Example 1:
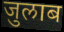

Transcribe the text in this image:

जुलाब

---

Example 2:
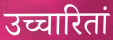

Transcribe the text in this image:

उच्चारितां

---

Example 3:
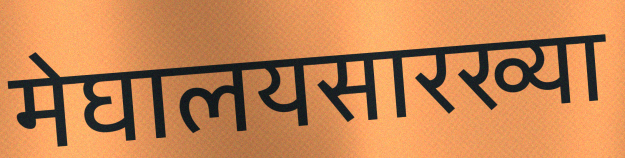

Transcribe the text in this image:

मेघालयसारख्या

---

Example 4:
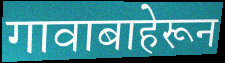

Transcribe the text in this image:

गावाबाहेरून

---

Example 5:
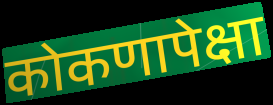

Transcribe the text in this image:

कोकणापेक्षा